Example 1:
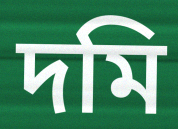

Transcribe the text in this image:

দমি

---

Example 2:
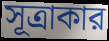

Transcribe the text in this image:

সূত্রাকার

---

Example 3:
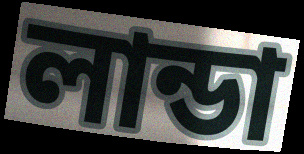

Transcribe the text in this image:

লান্ডা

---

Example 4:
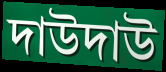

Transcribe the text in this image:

দাউদাউ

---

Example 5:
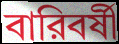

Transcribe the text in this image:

বারিবর্ষী